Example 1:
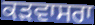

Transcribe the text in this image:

ਕੜਵਾਸਰਾ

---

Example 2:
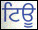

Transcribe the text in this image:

ਟਿਊ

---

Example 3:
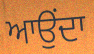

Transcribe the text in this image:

ਆਉੰਦਾ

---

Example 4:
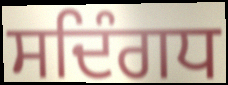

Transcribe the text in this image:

ਸਦਿੰਗਧ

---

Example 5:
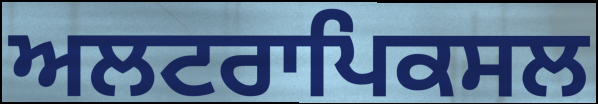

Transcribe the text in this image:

ਅਲਟਰਾਪਿਕਸਲ